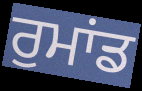
ਰੁਮਾਂਡ